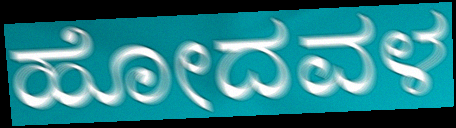
ಹೋದವಳ